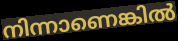
നിന്നാണെങ്കിൽ